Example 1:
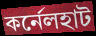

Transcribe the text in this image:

কর্নেলহাট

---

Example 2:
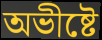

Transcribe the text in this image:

অভীষ্টে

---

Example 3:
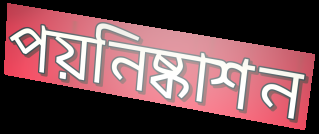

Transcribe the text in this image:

পয়নিষ্কাশন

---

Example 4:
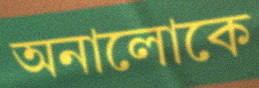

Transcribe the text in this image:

অনালোকে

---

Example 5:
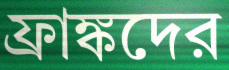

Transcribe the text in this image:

ফ্রাঙ্কদের